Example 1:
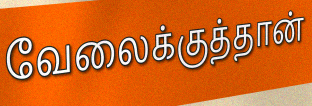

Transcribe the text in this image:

வேலைக்குத்தான்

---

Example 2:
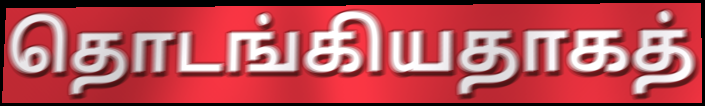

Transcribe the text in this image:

தொடங்கியதாகத்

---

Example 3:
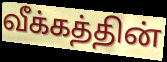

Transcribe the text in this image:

வீக்கத்தின்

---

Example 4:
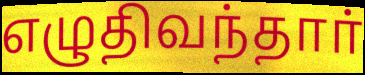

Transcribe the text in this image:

எழுதிவந்தார்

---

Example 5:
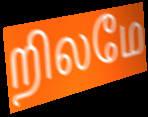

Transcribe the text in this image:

றிலமே